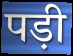
पड़ी